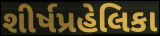
શીર્ષપ્રહેલિકા